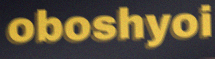
oboshyoi